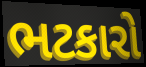
ભટકારો